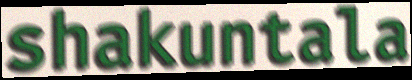
shakuntala